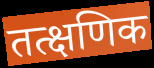
तत्क्षणिक